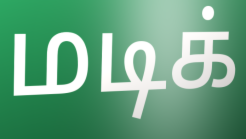
மடிக்